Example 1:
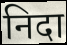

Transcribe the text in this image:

निदा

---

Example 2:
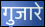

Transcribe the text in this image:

गुजारे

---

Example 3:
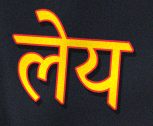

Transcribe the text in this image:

लेय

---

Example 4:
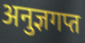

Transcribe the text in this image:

अनुज्ञगप्त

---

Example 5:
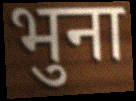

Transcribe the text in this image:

भुना